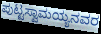
ಪುಟ್ಟಸ್ವಾಮಯ್ಯನವರ